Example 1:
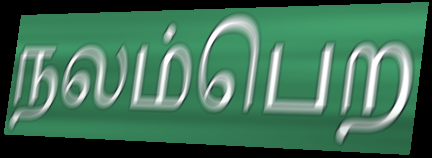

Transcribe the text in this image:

நலம்பெற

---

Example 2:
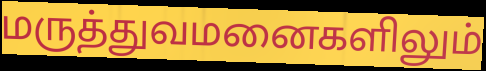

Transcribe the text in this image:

மருத்துவமனைகளிலும்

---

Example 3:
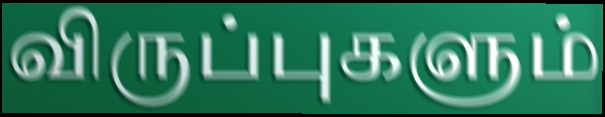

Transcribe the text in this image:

விருப்புகளும்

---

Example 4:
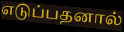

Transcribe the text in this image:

எடுப்பதனால்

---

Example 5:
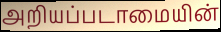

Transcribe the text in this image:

அறியப்படாமையின்